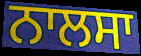
ਨਾਲਸਾ